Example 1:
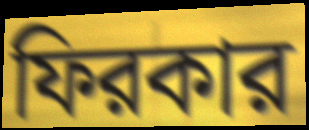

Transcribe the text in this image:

ফিরকার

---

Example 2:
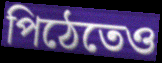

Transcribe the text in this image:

পিঠেতেও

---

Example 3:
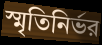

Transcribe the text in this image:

স্মৃতিনির্ভর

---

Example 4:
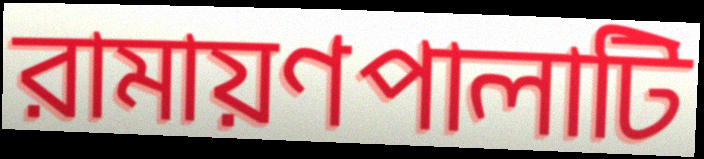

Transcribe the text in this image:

রামায়ণপালাটি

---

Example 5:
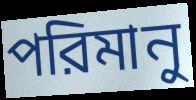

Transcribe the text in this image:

পরিমানু